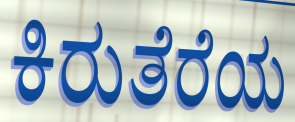
ಕಿರುತೆರೆಯ